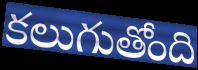
కలుగుతోంది